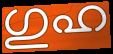
ഗുഹ